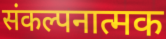
संकल्पनात्मक